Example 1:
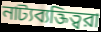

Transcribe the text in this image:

নাট্যব্যক্তিত্বরা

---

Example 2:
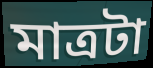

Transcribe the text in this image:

মাত্রটা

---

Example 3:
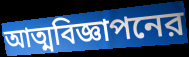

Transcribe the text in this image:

আত্মবিজ্ঞাপনের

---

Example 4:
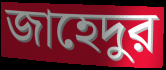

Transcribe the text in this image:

জাহেদুর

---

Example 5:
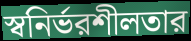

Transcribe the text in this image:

স্বনির্ভরশীলতার